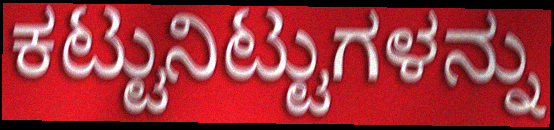
ಕಟ್ಟುನಿಟ್ಟುಗಳನ್ನು